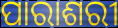
ପାରାଶରୀ